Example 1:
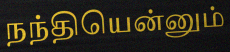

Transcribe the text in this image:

நந்தியென்னும்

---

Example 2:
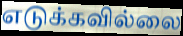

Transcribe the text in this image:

எடுக்கவில்லை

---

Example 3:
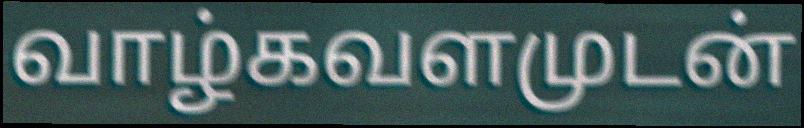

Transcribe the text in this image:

வாழ்கவளமுடன்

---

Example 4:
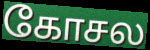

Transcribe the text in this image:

கோசல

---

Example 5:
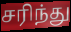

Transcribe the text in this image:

சரிந்து